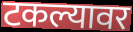
टकल्यावर